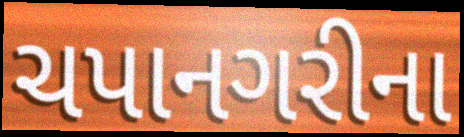
ચપાનગરીના